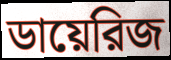
ডায়েরিজ